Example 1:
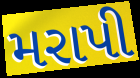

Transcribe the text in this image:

મરાપી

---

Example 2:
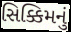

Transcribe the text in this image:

સિક્કિમનું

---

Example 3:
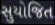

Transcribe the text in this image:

સુયોજિત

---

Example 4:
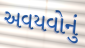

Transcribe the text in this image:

અવયવોનું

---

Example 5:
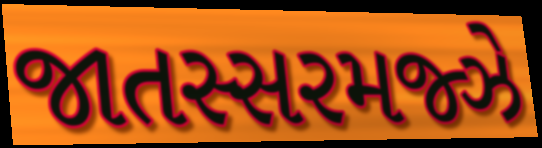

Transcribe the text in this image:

જાતસ્સરમજ્ઝે